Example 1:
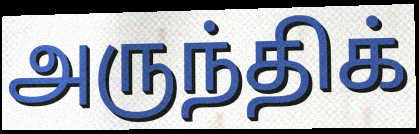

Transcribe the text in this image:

அருந்திக்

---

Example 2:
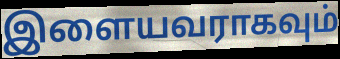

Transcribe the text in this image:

இளையவராகவும்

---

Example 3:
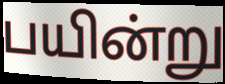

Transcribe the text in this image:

பயின்று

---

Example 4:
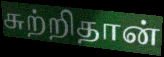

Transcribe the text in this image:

சுற்றிதான்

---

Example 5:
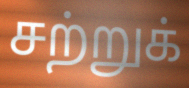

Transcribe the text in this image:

சற்றுக்